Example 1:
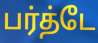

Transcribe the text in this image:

பர்த்டே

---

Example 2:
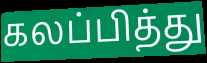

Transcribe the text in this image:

கலப்பித்து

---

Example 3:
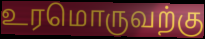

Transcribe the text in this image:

உரமொருவற்கு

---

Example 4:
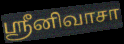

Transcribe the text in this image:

ஸ்ரீனிவாசா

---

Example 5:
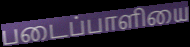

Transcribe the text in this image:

படைப்பாளியை